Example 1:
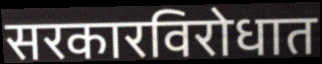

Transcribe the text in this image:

सरकारविरोधात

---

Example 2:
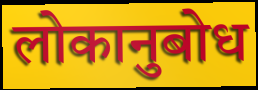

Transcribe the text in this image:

लोकानुबोध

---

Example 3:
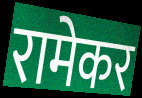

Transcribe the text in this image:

रामेकर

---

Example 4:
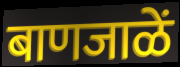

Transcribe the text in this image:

बाणजाळें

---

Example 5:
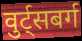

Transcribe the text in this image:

वुर्ट्सबर्ग